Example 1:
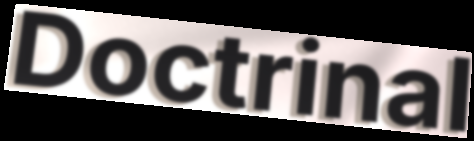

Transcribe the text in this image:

Doctrinal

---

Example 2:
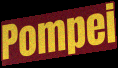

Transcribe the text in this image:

Pompei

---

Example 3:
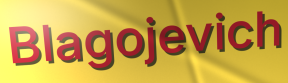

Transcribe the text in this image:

Blagojevich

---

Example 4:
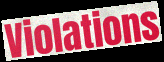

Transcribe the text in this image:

Violations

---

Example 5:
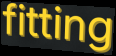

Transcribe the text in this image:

fitting